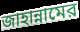
জাহান্নামের